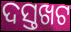
ଦସ୍ତଖଟ